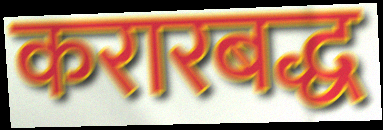
करारबद्ध